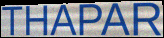
THAPAR